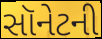
સૉનેટની